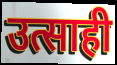
उत्साही